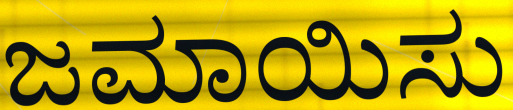
ಜಮಾಯಿಸು